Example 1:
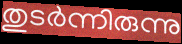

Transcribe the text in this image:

തുടർന്നിരുന്നു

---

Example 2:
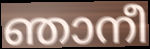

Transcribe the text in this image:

ഞാനീ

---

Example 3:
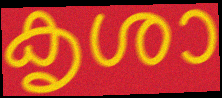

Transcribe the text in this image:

കൃശാ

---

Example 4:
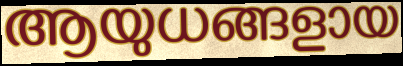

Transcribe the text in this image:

ആയുധങ്ങളായ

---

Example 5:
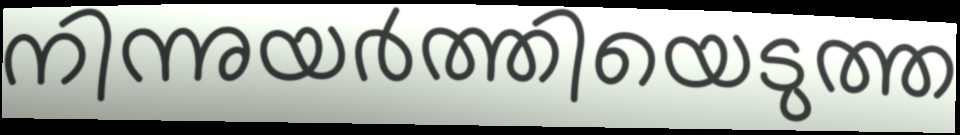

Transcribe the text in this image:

നിന്നുയർത്തിയെടുത്ത